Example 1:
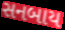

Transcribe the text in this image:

સનબાય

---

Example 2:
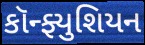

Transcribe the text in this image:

કૉન્ફ્યુશિયન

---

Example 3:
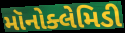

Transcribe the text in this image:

મૉનોક્લેમિડી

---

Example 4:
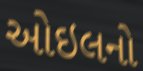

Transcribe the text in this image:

ઓઇલનો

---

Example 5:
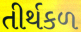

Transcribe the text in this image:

તીર્થકળ